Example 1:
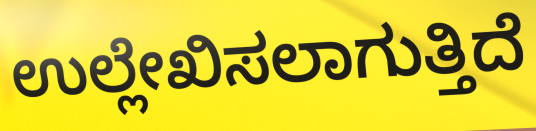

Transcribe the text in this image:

ಉಲ್ಲೇಖಿಸಲಾಗುತ್ತಿದೆ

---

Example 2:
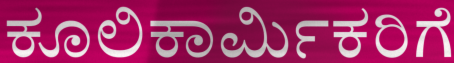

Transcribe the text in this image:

ಕೂಲಿಕಾರ್ಮಿಕರಿಗೆ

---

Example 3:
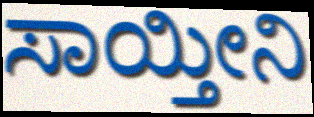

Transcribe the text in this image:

ಸಾಯ್ತೀನಿ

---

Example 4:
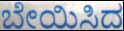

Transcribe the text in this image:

ಬೇಯಿಸಿದ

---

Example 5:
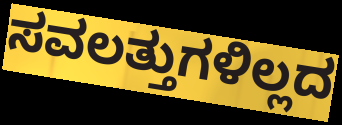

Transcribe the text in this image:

ಸವಲತ್ತುಗಳಿಲ್ಲದ